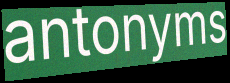
antonyms